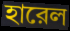
হারেল